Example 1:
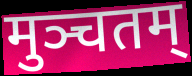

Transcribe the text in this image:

मुञ्चतम्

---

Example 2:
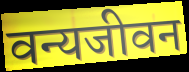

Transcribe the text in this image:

वन्यजीवन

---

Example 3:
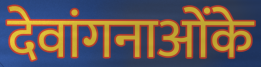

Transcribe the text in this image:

देवांगनाओंके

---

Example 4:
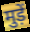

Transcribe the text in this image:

मुड़ें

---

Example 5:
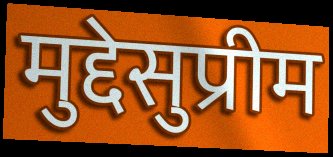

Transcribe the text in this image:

मुद्देसुप्रीम